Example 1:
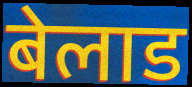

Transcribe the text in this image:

बेलाड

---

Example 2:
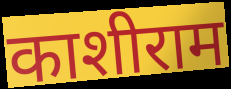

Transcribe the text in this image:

काशीराम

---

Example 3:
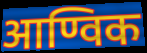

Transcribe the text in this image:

आण्विक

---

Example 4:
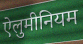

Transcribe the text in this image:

ऐलुमीनियम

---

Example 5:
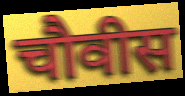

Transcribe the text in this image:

चौवीस